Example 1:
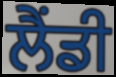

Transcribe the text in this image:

ਲੈਂਡੀ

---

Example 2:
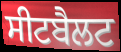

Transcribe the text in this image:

ਸੀਟਬੈਲਟ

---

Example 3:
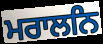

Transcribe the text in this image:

ਮਰਾਲਨਿ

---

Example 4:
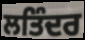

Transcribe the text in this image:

ਲਤਿੰਦਰ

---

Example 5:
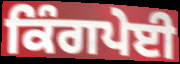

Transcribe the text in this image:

ਕਿੰਗਪੇਈ